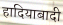
हादियाबादी